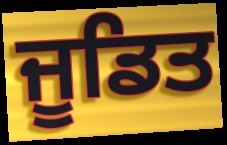
ਜੂਡਿਤ